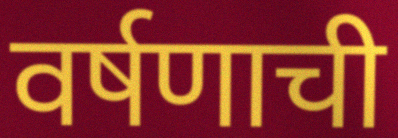
वर्षणाची